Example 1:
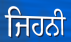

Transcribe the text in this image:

ਜਿਹਨੀ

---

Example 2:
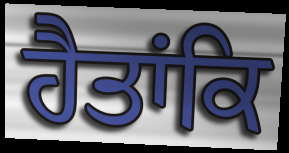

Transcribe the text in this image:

ਹੈਤਾਂਕਿ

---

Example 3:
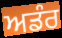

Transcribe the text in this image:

ਅਡੰਰ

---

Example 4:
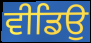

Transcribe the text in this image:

ਵੀਡਿਉ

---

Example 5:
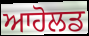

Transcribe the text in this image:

ਆਹੋਲਡ